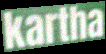
kartha